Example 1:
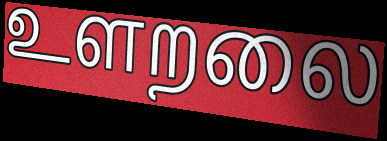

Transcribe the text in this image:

உளறலை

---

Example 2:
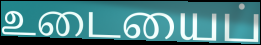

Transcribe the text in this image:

உடையைப்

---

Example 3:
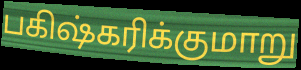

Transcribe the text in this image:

பகிஷ்கரிக்குமாறு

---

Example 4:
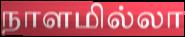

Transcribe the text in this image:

நாளமில்லா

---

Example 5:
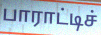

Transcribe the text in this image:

பாராட்டிச்